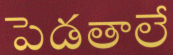
పెడతాలే